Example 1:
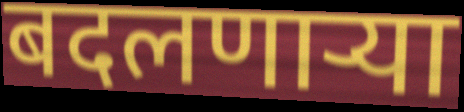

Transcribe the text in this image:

बदलणाऱ्या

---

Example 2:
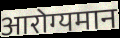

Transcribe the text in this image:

आरोग्यमान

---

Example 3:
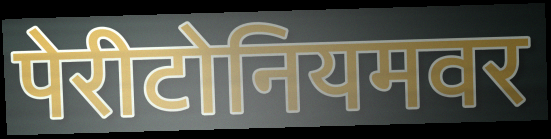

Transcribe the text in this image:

पेरीटोनियमवर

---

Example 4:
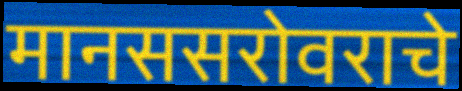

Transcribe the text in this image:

मानससरोवराचे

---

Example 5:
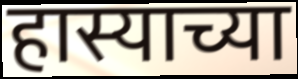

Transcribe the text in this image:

हास्याच्या